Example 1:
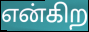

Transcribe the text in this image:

என்கிற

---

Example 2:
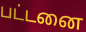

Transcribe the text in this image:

பட்டனை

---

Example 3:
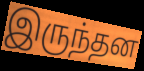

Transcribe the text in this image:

இருந்தன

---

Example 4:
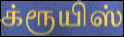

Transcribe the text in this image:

க்ரூயிஸ்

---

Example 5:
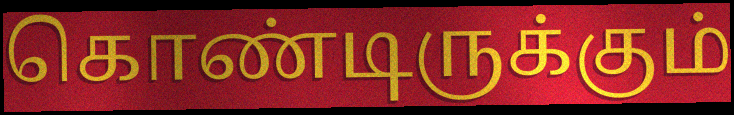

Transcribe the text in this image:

கொண்டிருக்கும்